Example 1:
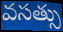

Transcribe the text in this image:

వసత్సు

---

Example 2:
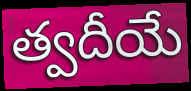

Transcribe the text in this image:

త్వదీయే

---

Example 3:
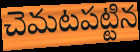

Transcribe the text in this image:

చెమటపట్టిన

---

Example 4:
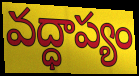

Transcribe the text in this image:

వద్ధాప్యం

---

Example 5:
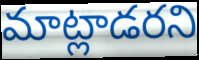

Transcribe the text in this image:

మాట్లాడరని